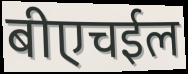
बीएचईल